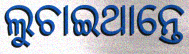
ଲୁଚାଇଥାନ୍ତେ